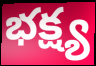
భక్ష్య